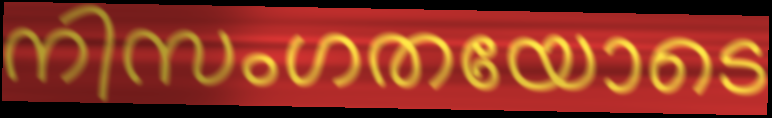
നിസംഗതയോടെ